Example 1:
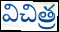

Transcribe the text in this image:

విచిత్ర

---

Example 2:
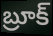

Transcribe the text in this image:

బ్రూక్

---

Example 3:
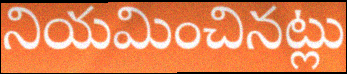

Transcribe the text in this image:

నియమించినట్లు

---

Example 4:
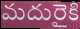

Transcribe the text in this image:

మదురైకి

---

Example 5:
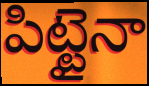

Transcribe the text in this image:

పిట్టైనా